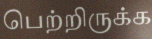
பெற்றிருக்க